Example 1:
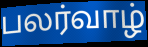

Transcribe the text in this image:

பலர்வாழ்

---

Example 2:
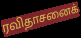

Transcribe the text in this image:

ரவிதாசனைக்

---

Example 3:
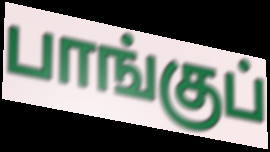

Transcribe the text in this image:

பாங்குப்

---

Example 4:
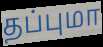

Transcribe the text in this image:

தப்புமா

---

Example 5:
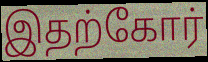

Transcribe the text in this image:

இதற்கோர்